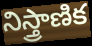
నిస్త్రాణిక